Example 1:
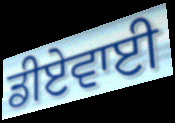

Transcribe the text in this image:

ਡੀਏਵਾਈ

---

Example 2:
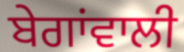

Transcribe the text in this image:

ਬੇਗਾਂਵਾਲੀ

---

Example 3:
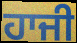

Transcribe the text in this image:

ਹਾਜੀ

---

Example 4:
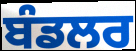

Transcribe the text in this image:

ਬੰਡਲਰ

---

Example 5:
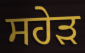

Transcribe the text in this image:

ਸਹੇੜ